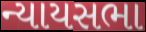
ન્યાયસભા